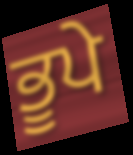
ਭੂਪੇ